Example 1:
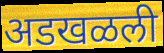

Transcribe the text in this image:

अडखळली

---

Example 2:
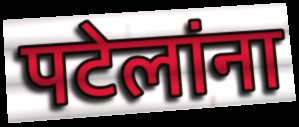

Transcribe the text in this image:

पटेलांना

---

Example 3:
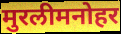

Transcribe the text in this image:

मुरलीमनोहर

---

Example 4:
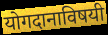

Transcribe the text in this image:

योगदानाविषयी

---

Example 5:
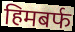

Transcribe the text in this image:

हिमबर्फ